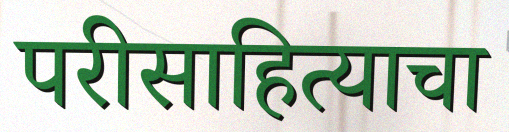
परीसाहित्याचा